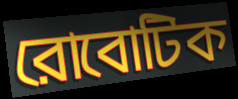
রোবোটিক